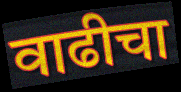
वाढीचा